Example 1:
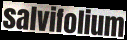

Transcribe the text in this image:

salvifolium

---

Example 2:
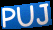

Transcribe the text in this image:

PUJ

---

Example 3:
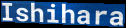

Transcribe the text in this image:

Ishihara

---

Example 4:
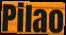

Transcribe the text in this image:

Pilao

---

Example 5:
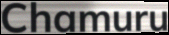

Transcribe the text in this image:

Chamuru